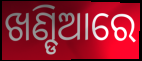
ଖଣ୍ଡିଆରେ